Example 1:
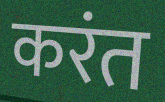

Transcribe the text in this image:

करंत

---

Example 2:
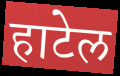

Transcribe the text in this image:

हाटेल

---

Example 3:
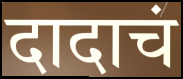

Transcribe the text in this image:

दादाचं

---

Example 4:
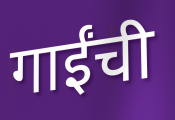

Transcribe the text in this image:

गाईंची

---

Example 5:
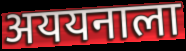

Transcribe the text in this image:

अययनाला